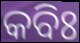
କବିଃ